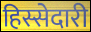
हिस्सेदारी